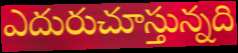
ఎదురుచూస్తున్నది